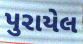
પુરાયેલ